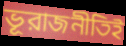
ভূরাজনীতিই